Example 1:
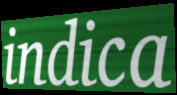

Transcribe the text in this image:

indica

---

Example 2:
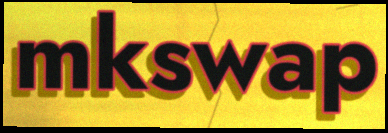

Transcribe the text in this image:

mkswap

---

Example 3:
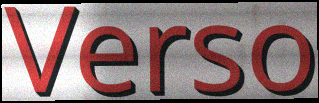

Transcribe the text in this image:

Verso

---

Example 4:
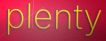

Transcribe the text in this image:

plenty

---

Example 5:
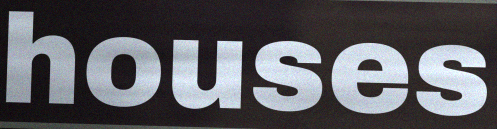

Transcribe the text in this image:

houses